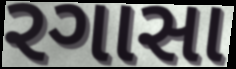
રગાસા